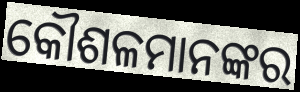
କୌଶଳମାନଙ୍କର